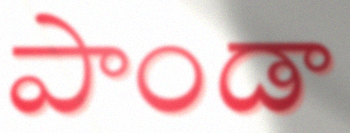
పాండా